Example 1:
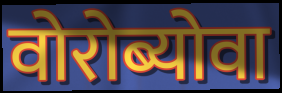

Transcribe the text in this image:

वोरोब्योवा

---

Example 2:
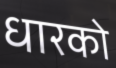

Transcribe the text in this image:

धारको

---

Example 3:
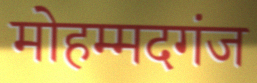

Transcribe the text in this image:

मोहम्मदगंज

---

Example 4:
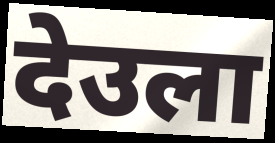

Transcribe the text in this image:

देउला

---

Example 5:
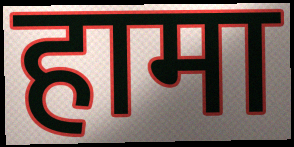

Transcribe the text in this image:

हामा